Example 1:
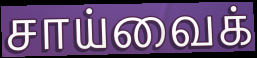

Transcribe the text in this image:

சாய்வைக்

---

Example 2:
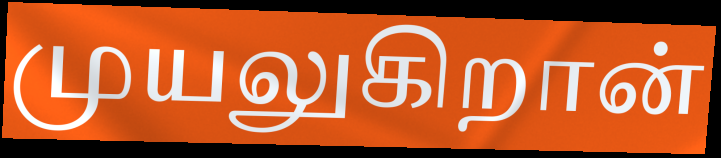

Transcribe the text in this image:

முயலுகிறான்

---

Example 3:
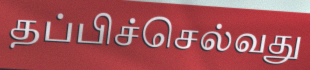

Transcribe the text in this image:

தப்பிச்செல்வது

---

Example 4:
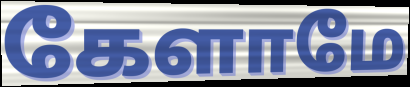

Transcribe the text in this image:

கேளாமே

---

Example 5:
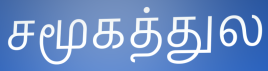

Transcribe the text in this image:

சமூகத்துல